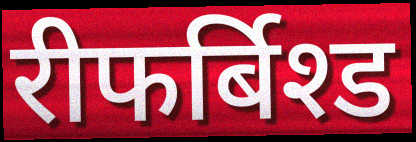
रीफर्बिश्ड